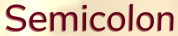
Semicolon